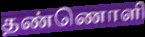
தண்ணொளி